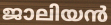
ജാലിയൻ